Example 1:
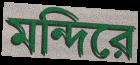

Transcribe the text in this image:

মন্দিরে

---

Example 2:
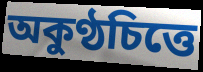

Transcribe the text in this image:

অকুণ্ঠচিত্তে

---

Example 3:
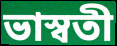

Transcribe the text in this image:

ভাস্বতী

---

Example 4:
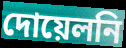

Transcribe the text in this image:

দোয়েলনি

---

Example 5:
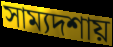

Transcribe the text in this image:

সাম্যদশায়